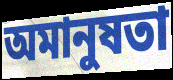
অমানুষতা